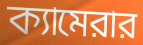
ক্যামেরার